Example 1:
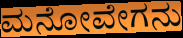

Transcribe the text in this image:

ಮನೋವೇಗನು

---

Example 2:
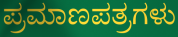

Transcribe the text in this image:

ಪ್ರಮಾಣಪತ್ರಗಳು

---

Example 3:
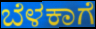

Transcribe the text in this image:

ಬೆಳಕಾಗೆ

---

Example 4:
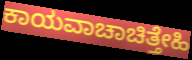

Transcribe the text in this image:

ಕಾಯವಾಚಾಚಿತ್ತೇಹಿ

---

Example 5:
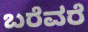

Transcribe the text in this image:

ಬರೆವರೆ